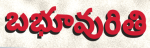
బభూవురితి